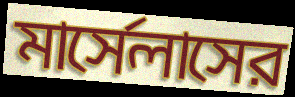
মার্সেলাসের